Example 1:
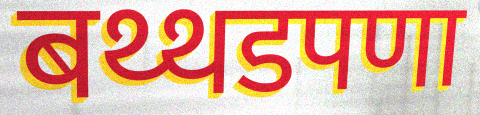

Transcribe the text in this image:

बथ्थडपणा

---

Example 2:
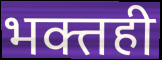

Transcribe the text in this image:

भक्तही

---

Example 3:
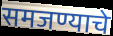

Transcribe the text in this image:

समजण्याचे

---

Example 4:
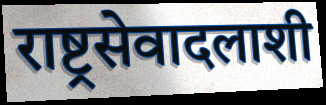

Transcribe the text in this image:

राष्ट्रसेवादलाशी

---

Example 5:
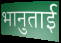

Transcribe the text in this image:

भानुताई